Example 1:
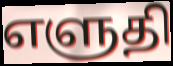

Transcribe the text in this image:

எளுதி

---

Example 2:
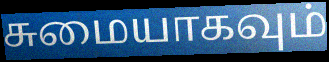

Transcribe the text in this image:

சுமையாகவும்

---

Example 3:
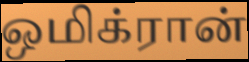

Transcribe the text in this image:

ஒமிக்ரான்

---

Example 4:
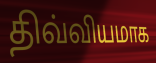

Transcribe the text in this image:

திவ்வியமாக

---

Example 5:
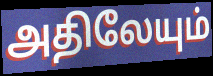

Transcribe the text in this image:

அதிலேயும்